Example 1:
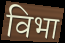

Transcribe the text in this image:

विभा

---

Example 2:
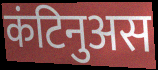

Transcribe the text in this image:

कंटिनुअस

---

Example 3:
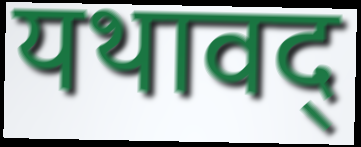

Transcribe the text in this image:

यथावद्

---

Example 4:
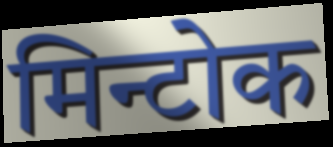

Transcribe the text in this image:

मिन्टोक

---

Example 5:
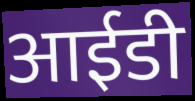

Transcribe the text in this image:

आईडी